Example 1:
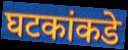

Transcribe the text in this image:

घटकांकडे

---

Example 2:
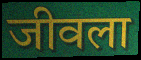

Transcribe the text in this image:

जीवला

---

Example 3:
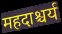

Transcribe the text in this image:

महदाश्चर्य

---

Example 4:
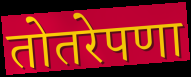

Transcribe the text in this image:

तोतरेपणा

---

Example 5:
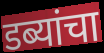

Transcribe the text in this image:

डब्यांचा